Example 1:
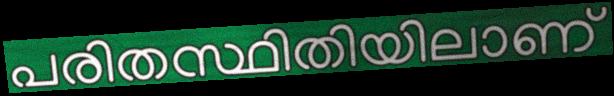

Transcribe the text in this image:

പരിതസ്ഥിതിയിലാണ്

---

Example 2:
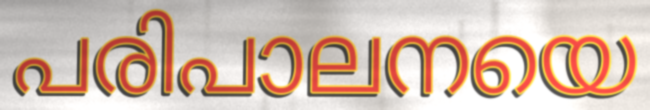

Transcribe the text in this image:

പരിപാലനയെ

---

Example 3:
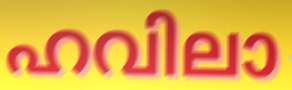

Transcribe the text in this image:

ഹവിലാ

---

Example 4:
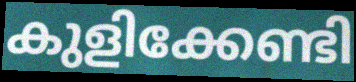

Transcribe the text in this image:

കുളിക്കേണ്ടി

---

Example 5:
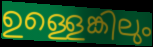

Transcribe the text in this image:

ഉള്ളെങ്കിലും